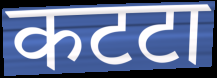
कटटा